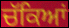
ਚੱਕਿਆਂ